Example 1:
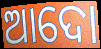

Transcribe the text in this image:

ଆଦୋ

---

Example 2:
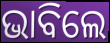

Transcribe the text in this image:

ଭାବିଲେ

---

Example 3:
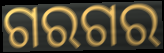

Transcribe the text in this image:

ଗରଗର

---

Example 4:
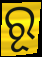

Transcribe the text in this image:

ରୂ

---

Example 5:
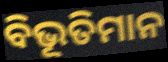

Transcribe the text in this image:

ବିଭୂତିମାନ